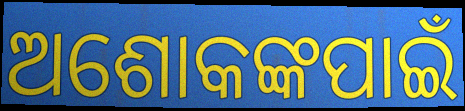
ଅଶୋକଙ୍କପାଇଁ